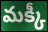
మక్కీ